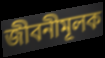
জীবনীমূলক